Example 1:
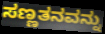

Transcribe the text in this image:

ಸಣ್ಣತನವನ್ನು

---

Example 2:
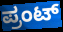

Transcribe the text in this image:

ಪ್ರಂಟ್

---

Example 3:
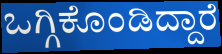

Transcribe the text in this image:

ಒಗ್ಗಿಕೊಂಡಿದ್ದಾರೆ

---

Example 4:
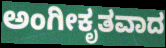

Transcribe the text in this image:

ಅಂಗೀಕೃತವಾದ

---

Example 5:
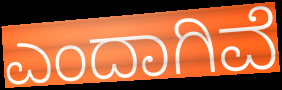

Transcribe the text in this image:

ಎಂದಾಗಿವೆ